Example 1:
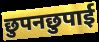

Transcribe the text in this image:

छुपनछुपाई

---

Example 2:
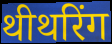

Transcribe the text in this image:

थीथरिंग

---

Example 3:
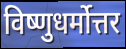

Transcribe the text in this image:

विष्णुधर्मोत्तर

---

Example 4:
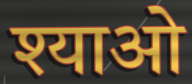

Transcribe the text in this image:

श्याओ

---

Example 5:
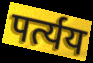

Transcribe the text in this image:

पर्त्यय